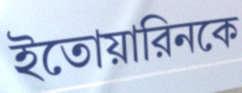
ইতোয়ারিনকে